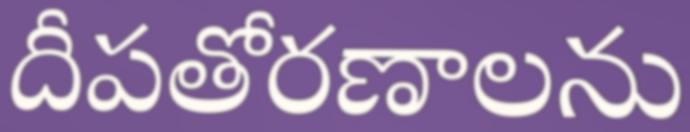
దీపతోరణాలను